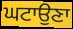
ਘਟਾਉਣਾ